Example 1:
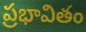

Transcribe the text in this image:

ప్రభావితం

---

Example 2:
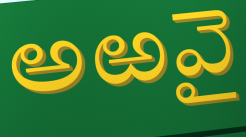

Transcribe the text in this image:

అఱవై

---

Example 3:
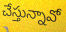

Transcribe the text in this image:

చేస్తున్నావో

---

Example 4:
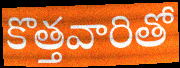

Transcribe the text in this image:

కొత్తవారితో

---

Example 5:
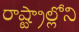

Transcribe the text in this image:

రాష్ట్రాల్లోని